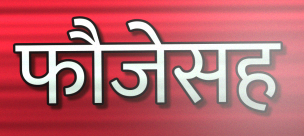
फौजेसह